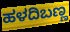
ಹಳದಿಬಣ್ಣ